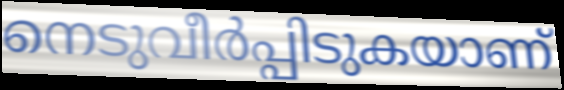
നെടുവീർപ്പിടുകയാണ്